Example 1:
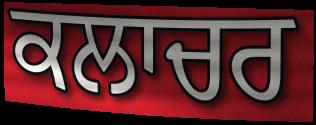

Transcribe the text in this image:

ਕਲਾਚਰ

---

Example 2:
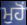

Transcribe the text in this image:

ਮੁਹੋਂ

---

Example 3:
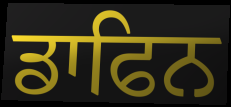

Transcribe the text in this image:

ਡਾਫਿਨ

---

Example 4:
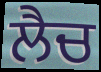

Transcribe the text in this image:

ਲੈਚ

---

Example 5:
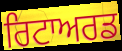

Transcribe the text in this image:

ਰਿਟਾਅਰਡ